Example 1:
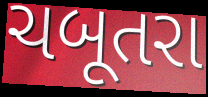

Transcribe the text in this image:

ચબૂતરા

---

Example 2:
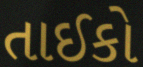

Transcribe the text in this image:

તાઈકો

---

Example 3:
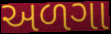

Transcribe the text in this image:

અળગા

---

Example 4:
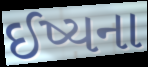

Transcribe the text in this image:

ઈષ્યના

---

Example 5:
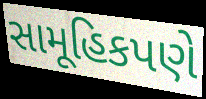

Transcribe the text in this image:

સામૂહિકપણે